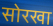
सोरखा